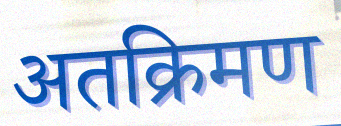
अतक्रिमण